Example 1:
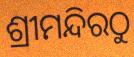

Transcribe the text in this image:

ଶ୍ରୀମନ୍ଦିରଠୁ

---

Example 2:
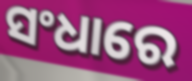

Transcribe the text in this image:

ସଂଧାରେ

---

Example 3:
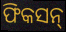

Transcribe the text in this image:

ଫିକସନ୍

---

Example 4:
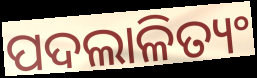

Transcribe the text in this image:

ପଦଲାଳିତ୍ୟଂ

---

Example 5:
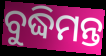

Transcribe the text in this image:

ବୁଦ୍ଧିମନ୍ତ